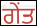
ਗੇਂਤ